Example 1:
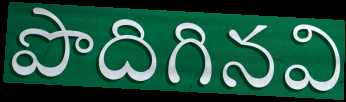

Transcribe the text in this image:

పొదిగినవి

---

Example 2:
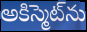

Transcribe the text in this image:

అకిస్మెట్‌ను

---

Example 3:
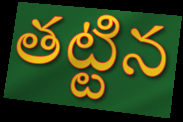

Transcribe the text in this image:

తట్టిన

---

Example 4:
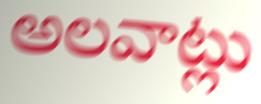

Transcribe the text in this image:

అలవాట్లు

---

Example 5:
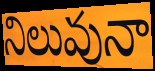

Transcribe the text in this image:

నిలువునా